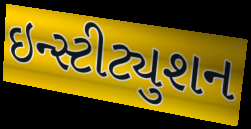
ઇન્સ્ટીટ્યુશન